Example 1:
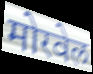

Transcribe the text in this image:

मोरवेल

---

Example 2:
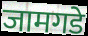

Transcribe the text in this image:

जामगडे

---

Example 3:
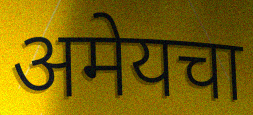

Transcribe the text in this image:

अमेयचा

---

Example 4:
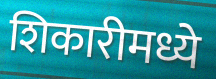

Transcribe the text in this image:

शिकारीमध्ये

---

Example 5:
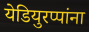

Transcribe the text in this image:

येडियुरप्पांना